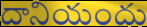
దానియందు